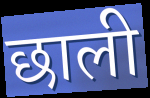
छाली